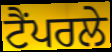
ਟੈਂਪਰਲੇ